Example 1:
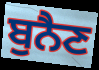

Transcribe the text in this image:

ਬੁਨੈਣ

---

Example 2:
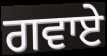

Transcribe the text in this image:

ਗਵਾਏ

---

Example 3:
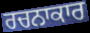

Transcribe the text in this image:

ਰਚਨਾਕਾਰ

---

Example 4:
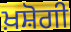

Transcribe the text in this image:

ਖ਼ਸ਼ੋਗੀ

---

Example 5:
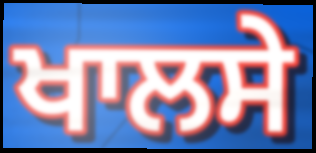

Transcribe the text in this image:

ਖਾਲਸੇ